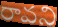
రావని